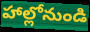
హాల్లోనుండి